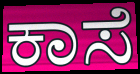
ಕಾಸೆ